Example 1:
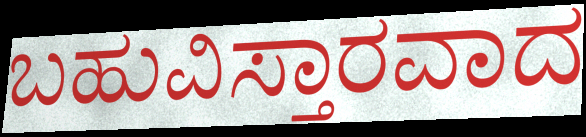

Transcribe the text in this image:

ಬಹುವಿಸ್ತಾರವಾದ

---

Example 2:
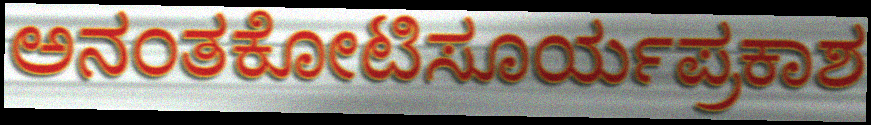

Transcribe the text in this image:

ಅನಂತಕೋಟಿಸೂರ್ಯಪ್ರಕಾಶ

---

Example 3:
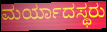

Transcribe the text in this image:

ಮರ್ಯಾದಸ್ಥರು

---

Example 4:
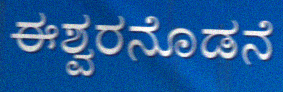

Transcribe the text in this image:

ಈಶ್ವರನೊಡನೆ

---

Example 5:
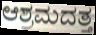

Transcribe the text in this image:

ಆಶ್ರಮದತ್ತ